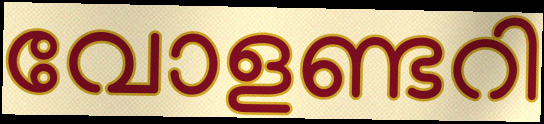
വോളണ്ടറി